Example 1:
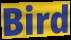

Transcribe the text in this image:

Bird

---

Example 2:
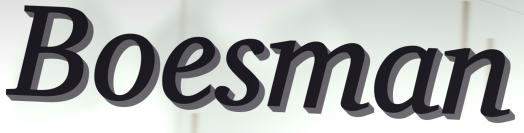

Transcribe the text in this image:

Boesman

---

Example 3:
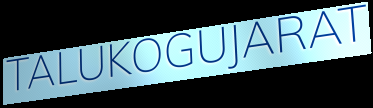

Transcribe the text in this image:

TALUKOGUJARAT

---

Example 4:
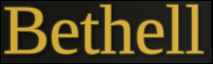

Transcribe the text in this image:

Bethell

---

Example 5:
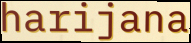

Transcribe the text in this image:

harijana